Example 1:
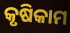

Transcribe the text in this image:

କୃଷିକାମ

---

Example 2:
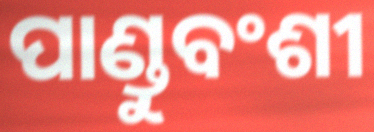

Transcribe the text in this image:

ପାଣ୍ଡୁବଂଶୀ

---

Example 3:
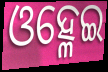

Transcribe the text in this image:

ଓହ୍ଳେଇ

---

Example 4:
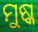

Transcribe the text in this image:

ମୁଷ୍କ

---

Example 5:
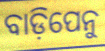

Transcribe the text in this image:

ବାଡ଼ିପେନୁ